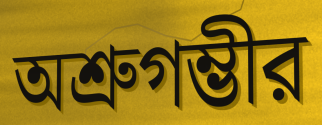
অশ্রুগম্ভীর